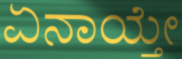
ಏನಾಯ್ತೇ